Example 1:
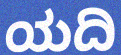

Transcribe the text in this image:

ಯದಿ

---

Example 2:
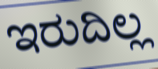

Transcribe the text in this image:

ಇರುದಿಲ್ಲ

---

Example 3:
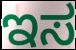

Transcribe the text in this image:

ಇಸ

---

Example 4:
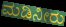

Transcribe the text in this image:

ಮಡಿನೀರು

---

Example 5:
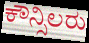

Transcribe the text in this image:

ಕೌನ್ಸಿಲರು